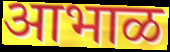
आभाळ